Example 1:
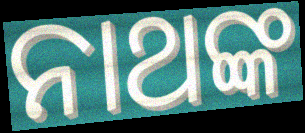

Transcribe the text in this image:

ନାଥଙ୍କ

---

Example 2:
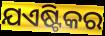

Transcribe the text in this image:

ଯଏଷ୍ଟିକର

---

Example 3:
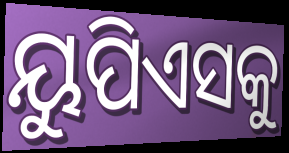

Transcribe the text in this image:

ୟୁପିଏସକୁ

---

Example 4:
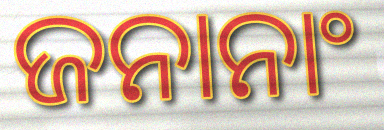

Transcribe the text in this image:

ଜନାନାଂ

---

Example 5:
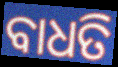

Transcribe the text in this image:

ବାଧତି